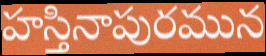
హస్తినాపురమున